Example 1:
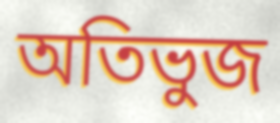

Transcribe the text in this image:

অতিভুজ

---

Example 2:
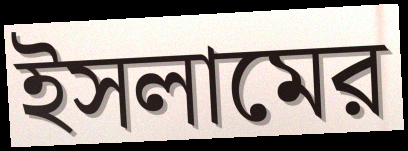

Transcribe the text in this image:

ইসলামের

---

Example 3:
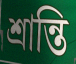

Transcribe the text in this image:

শ্রান্তি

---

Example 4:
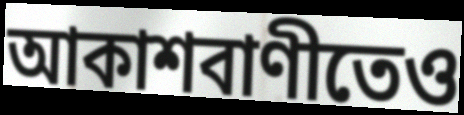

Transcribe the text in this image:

আকাশবাণীতেও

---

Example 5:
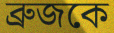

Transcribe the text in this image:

ব্রুজকে